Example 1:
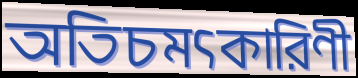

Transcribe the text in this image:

অতিচমৎকারিণী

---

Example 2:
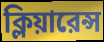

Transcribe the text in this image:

ক্লিয়ারেন্স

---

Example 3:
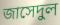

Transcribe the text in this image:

জাসেদুল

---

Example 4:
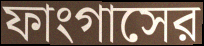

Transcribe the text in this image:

ফাংগাসের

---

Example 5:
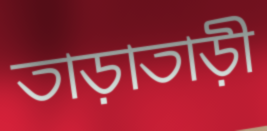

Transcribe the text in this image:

তাড়াতাড়ী